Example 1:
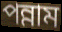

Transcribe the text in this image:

পন্নাম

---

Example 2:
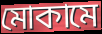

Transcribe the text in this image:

মোকামে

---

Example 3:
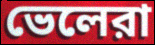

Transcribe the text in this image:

ভেলেরা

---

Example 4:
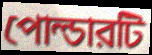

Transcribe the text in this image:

পোল্ডারটি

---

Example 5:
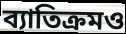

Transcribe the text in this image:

ব্যাতিক্রমও